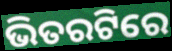
ଭିତରଟିରେ